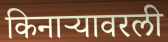
किनाऱ्यावरली